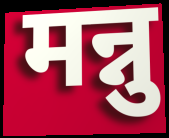
मन्नु